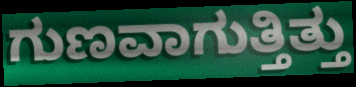
ಗುಣವಾಗುತ್ತಿತ್ತು